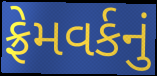
ફ્રેમવર્કનું